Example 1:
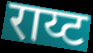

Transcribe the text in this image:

राय्ट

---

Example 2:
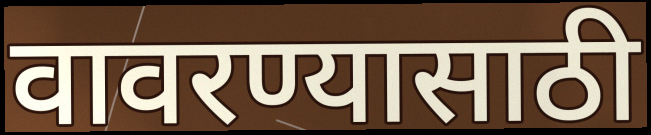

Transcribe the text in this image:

वावरण्यासाठी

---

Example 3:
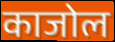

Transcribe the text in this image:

काजोल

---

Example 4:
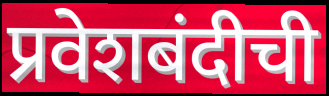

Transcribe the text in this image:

प्रवेशबंदीची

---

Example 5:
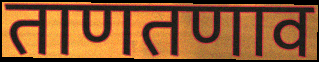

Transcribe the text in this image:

ताणतणाव